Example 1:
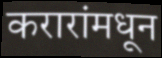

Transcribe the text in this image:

करारांमधून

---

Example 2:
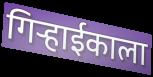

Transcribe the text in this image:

गिऱ्हाईकाला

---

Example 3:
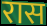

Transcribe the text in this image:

रास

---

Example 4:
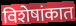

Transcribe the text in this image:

विशेषांकात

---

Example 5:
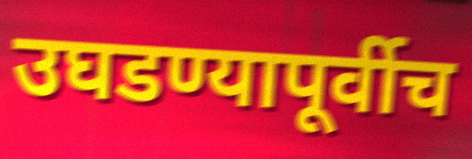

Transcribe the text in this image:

उघडण्यापूर्वीच